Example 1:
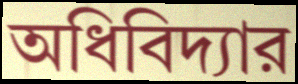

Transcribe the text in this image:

অধিবিদ্যার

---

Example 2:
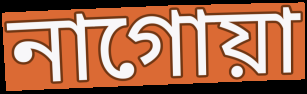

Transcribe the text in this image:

নাগোয়া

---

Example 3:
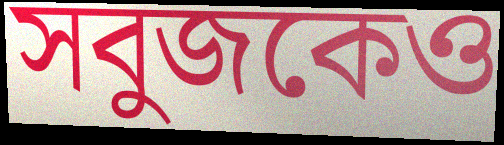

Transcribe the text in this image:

সবুজকেও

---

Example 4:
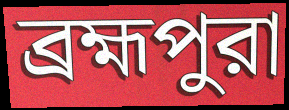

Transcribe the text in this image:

ব্রহ্মপুরা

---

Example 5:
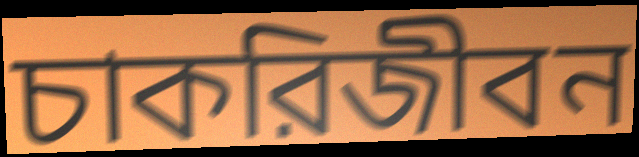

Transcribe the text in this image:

চাকরিজীবন